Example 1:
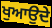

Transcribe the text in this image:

ਖੁਆਉਦੇ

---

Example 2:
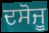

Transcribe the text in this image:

ਦਸੋਜੂ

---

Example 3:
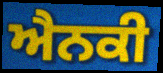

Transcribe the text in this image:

ਐਨਕੀ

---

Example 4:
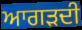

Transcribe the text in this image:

ਆਗੜਦੀ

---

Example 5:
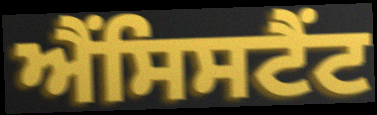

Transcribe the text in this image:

ਐਂਸਿਸਟੈਂਟ